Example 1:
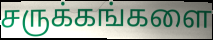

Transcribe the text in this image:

சருக்கங்களை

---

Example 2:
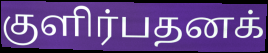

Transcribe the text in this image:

குளிர்பதனக்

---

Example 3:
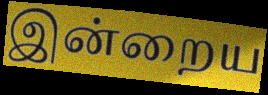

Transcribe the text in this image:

இன்றைய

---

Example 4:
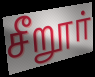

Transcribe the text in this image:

சீறூர்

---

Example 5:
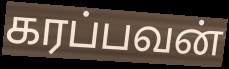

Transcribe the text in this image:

கரப்பவன்